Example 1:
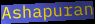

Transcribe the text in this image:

Ashapuran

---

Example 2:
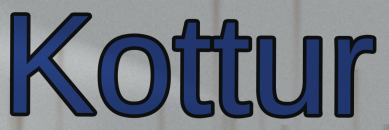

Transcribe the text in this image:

Kottur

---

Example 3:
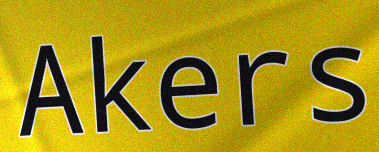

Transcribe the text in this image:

Akers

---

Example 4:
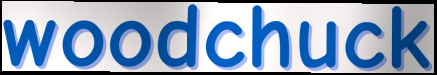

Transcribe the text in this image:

woodchuck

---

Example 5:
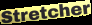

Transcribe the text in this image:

Stretcher